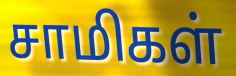
சாமிகள்